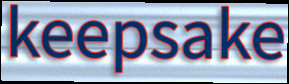
keepsake